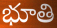
భూతి